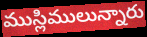
ముస్లిములున్నారు